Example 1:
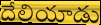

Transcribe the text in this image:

దేలియాడు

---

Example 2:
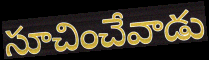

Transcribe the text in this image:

సూచించేవాడు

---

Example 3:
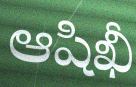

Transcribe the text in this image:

ఆషిఖీ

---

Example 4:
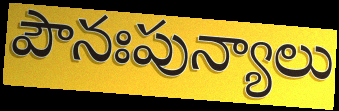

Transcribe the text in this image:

పౌనఃపున్యాలు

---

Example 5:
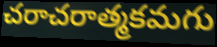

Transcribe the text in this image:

చరాచరాత్మకమగు